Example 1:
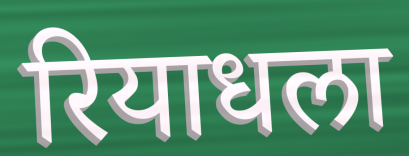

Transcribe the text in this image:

रियाधला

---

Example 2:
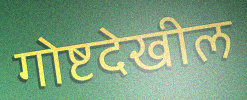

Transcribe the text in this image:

गोष्टदेखील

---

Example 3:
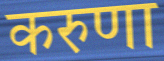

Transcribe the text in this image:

करुणा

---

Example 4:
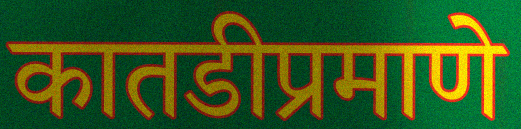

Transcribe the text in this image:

कातडीप्रमाणे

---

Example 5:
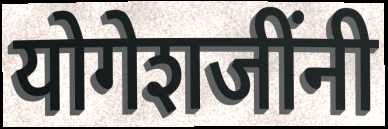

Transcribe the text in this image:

योगेशजींनी